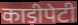
काडीपेटी